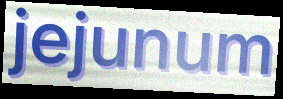
jejunum